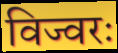
विज्वरः